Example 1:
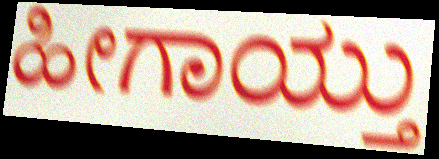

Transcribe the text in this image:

ಹೀಗಾಯ್ತು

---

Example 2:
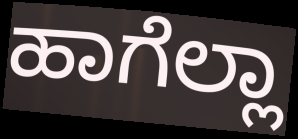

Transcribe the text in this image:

ಹಾಗೆಲ್ಲಾ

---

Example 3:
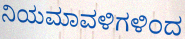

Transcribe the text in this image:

ನಿಯಮಾವಳಿಗಳಿಂದ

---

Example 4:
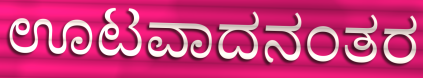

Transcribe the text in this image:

ಊಟವಾದನಂತರ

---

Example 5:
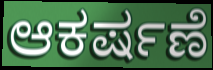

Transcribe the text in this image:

ಆಕರ್ಷಣೆ